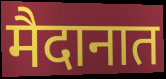
मैदानात